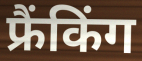
फ्रैंकिंग